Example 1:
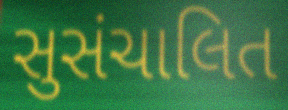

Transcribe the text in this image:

સુસંચાલિત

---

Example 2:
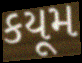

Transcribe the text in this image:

કયૂમ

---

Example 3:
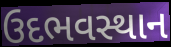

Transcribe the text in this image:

ઉદભવસ્થાન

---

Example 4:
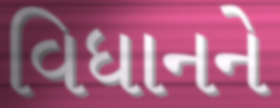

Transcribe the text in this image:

વિધાનને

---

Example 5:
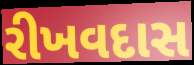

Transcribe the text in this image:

રીખવદાસ